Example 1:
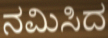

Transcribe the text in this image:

ನಮಿಸಿದ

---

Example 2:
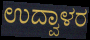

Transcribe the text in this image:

ಉದ್ವಾಳರ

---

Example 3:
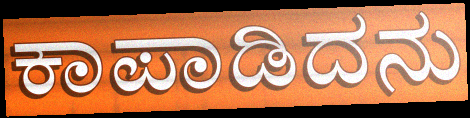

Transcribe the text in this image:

ಕಾಪಾಡಿದನು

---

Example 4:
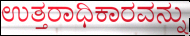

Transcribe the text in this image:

ಉತ್ತರಾಧಿಕಾರವನ್ನು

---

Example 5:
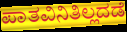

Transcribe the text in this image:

ಪಾತವಿನಿತಿಲ್ಲದಡೆ